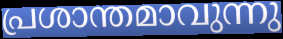
പ്രശാന്തമാവുന്നു